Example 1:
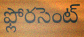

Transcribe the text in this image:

ఫ్లోరసెంట్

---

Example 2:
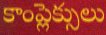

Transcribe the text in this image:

కాంప్లెక్సులు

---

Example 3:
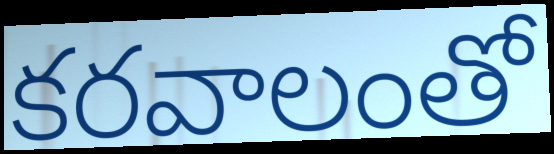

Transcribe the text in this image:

కరవాలంతో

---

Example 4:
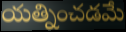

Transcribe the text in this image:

యత్నించడమే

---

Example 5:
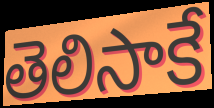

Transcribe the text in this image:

తెలిసాకే